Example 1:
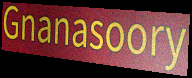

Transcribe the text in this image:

Gnanasoory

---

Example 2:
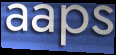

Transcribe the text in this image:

aaps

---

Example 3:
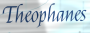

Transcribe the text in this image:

Theophanes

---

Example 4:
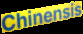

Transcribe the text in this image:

Chinensis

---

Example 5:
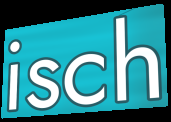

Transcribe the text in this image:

isch